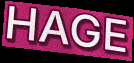
HAGE